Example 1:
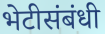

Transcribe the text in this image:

भेटीसंबंधी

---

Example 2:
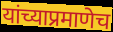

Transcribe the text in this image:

यांच्याप्रमाणेच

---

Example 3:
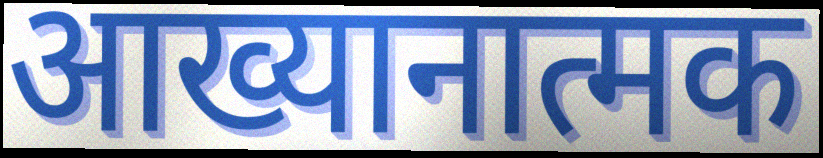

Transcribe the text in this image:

आख्यानात्मक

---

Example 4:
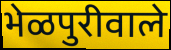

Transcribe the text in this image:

भेळपुरीवाले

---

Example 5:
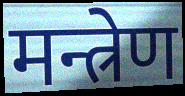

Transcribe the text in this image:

मन्त्रेण